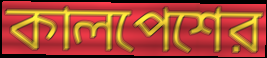
কালপেশের